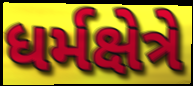
ધર્મક્ષેત્રે